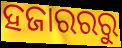
ହଜାରରରୁ